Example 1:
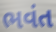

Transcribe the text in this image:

ભવંત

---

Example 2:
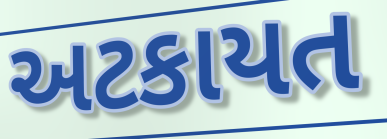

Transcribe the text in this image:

અટકાયત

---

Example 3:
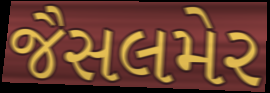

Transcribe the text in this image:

જૈસલમેર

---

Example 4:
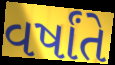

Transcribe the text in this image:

વર્ષાંતે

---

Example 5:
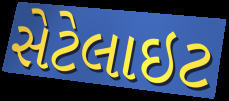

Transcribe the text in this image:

સેટેલાઇટ